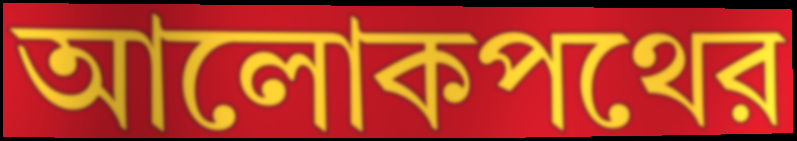
আলোকপথের